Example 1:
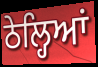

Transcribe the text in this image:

ਠੇਲ੍ਹਿਆਂ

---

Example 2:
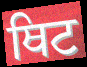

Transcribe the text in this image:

ਥਿਟ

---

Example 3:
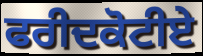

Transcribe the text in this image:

ਫਰੀਦਕੋਟੀਏ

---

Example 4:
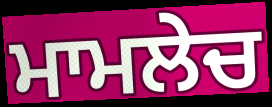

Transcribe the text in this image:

ਮਾਮਲੇਚ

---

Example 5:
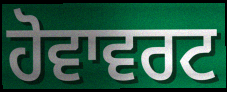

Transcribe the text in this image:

ਹੋਵਾਵਰਟ